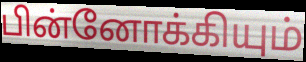
பின்னோக்கியும்